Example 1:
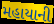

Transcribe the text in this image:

મહાયાની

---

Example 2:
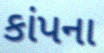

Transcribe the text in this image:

કાંપના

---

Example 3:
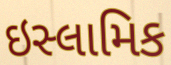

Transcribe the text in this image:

ઇસ્લામિક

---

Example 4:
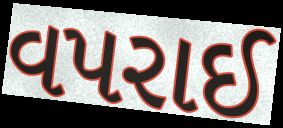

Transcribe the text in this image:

વપરાઈ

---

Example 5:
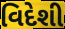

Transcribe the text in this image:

વિદેશી